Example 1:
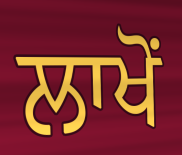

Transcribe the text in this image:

ਲਾਖੋਂ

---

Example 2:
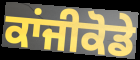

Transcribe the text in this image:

ਕਾਂਜੀਕੋਡੇ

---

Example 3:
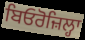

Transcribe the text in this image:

ਬਿਓਰੋਜ਼ਿਲ੍ਹਾ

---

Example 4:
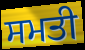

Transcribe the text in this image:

ਸਮਤੀ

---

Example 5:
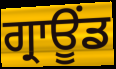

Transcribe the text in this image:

ਗ੍ਰਾਊਂਡ